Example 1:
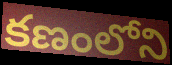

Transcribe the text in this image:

కణంలోని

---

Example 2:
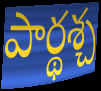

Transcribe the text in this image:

పార్థశ్చ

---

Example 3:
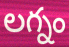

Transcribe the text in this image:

లగ్నం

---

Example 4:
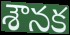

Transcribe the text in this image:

శౌనక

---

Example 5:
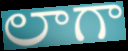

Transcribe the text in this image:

లాగా